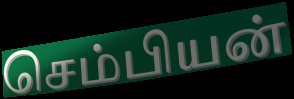
செம்பியன்